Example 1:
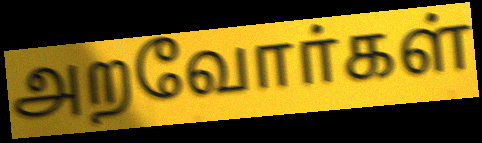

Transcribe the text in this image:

அறவோர்கள்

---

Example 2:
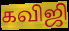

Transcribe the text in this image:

கவிஜி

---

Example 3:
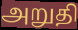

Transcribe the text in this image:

அறுதி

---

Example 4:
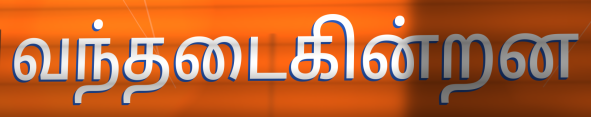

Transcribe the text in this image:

வந்தடைகின்றன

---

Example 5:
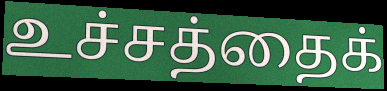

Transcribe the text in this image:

உச்சத்தைக்